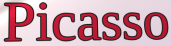
Picasso